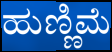
ಹುಣ್ಣಿಮೆ